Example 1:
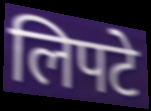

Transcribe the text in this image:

लिपटे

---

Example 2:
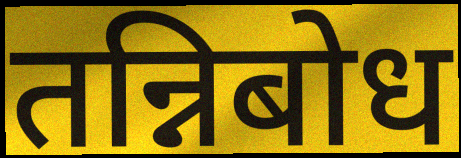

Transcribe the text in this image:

तन्निबोध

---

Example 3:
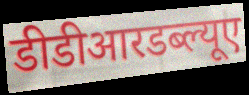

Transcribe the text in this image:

डीडीआरडब्ल्यूए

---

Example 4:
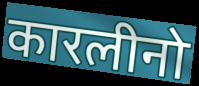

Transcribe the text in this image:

कारलीनो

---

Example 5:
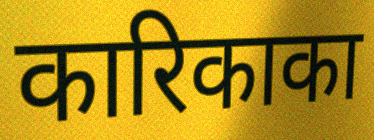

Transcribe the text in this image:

कारिकाका